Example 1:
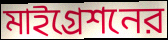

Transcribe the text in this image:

মাইগ্রেশনের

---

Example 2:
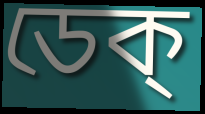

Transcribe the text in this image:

ডেক্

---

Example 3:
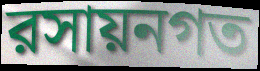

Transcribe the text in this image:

রসায়নগত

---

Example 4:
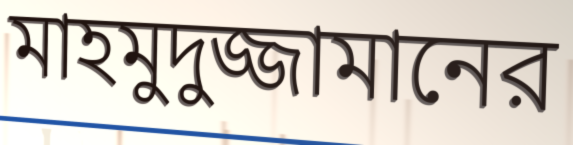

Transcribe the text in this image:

মাহমুদুজ্জামানের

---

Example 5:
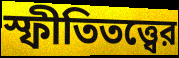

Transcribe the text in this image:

স্ফীতিতত্ত্বের